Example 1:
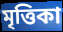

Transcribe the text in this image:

মৃত্তিকা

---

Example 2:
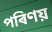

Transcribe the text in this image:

পৰিণয়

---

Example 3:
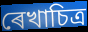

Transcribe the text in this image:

ৰেখাচিত্ৰ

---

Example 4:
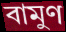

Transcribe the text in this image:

বামুণ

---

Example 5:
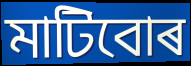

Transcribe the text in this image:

মাটিবোৰ